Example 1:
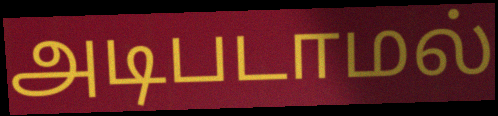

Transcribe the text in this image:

அடிபடாமல்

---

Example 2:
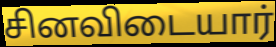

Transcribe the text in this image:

சினவிடையார்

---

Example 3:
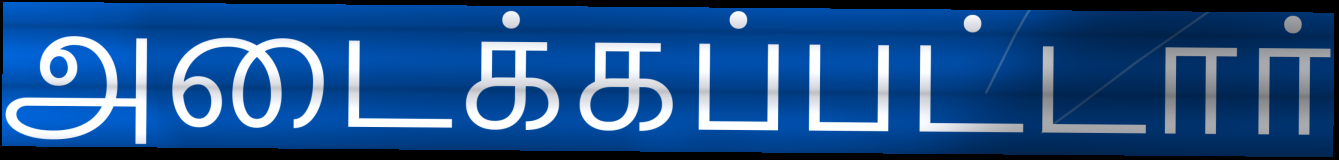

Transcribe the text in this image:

அடைக்கப்பட்டார்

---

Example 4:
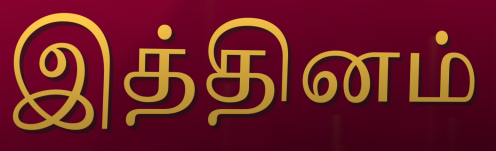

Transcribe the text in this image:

இத்தினம்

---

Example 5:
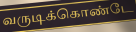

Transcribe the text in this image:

வருடிக்கொண்டே